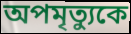
অপমৃত্যুকে